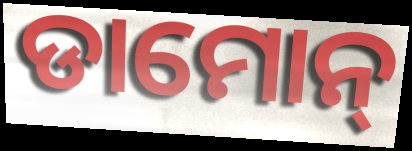
ଡାମୋନ୍